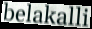
belakalli